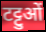
टट्टुओं